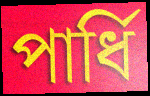
পাৰ্ধি